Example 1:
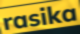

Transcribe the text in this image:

rasika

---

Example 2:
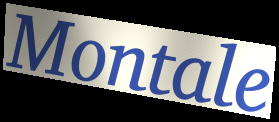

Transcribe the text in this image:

Montale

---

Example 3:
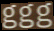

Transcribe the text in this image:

ggg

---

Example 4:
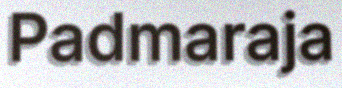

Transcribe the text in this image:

Padmaraja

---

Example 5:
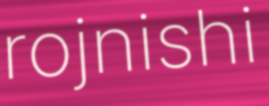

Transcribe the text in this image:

rojnishi